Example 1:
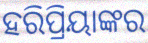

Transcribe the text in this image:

ହରିପ୍ରିୟାଙ୍କର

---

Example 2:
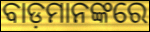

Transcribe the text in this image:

ବାଡ଼ମାନଙ୍କରେ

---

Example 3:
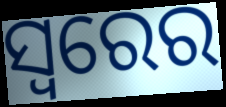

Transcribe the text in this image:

ସ୍ୱରେର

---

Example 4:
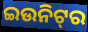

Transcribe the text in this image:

ଇଉନିଟ୍‍ର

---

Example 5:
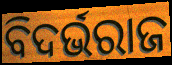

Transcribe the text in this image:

ବିଦର୍ଭରାଜ